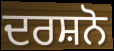
ਦਰਸ਼ਨੋ